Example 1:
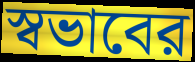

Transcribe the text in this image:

স্বভাবের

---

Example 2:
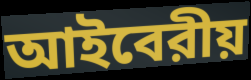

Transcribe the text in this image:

আইবেরীয়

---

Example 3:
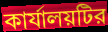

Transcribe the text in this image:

কার্যালয়টির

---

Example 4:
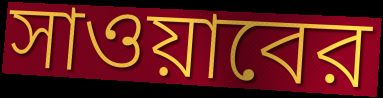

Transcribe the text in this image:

সাওয়াবের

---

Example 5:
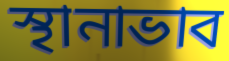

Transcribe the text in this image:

স্থানাভাব